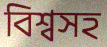
বিশ্বসহ